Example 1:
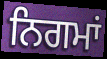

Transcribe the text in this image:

ਨਿਗਮਾਂ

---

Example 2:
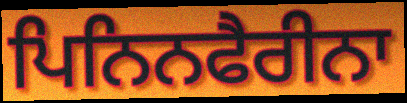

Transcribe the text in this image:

ਪਿਨਿਨਫੈਰੀਨਾ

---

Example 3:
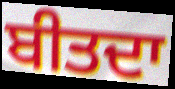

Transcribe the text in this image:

ਬੀਤਦਾ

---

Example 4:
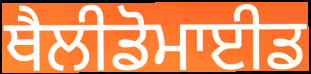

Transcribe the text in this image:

ਥੈਲੀਡੋਮਾਈਡ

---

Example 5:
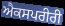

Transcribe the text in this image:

ਐਕਸਪਰੀਰੀ